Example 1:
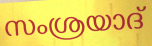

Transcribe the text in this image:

സംശ്രയാദ്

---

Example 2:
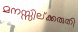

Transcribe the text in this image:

മനസ്സില്ക്കരുതി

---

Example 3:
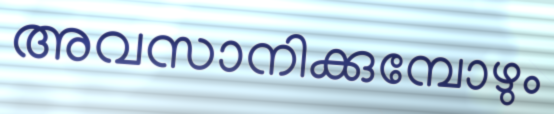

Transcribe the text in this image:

അവസാനിക്കുമ്പോഴും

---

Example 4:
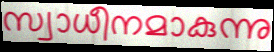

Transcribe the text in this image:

സ്വാധീനമാകുന്നു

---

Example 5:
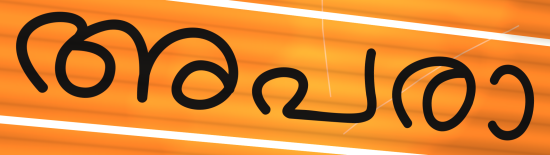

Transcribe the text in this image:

അപരാ